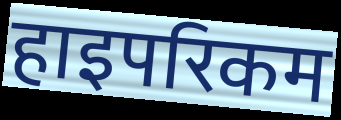
हाइपरिकम